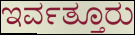
ಇರ್ವತ್ತೂರು